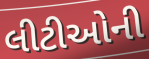
લીટીઓની